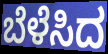
ಬೆಳೆಸಿದ